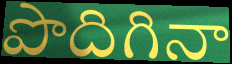
పొదిగినా